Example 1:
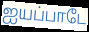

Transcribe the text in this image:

ஐயப்பாடே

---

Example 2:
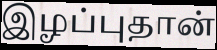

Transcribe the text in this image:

இழப்புதான்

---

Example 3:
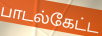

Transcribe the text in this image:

பாடல்கேட்ட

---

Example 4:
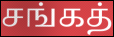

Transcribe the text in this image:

சங்கத்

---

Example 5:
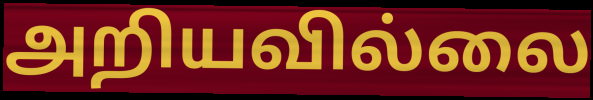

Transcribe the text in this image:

அறியவில்லை